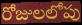
రోజులలోపు